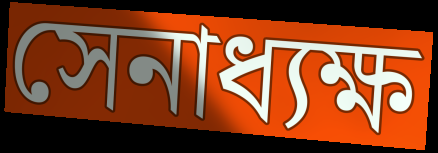
সেনাধ্যক্ষ